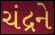
ચંદ્રને